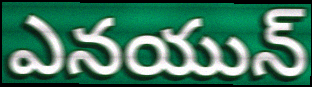
ఎనయున్